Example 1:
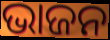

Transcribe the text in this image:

ଭାଜନ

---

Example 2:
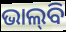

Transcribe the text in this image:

ଭାଲ୍‌ବି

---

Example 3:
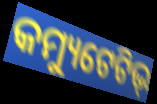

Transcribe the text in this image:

କମ୍ୟୁଟେଟିଭ୍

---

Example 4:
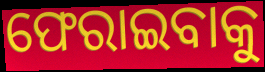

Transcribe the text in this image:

ଫେରାଇବାକୁ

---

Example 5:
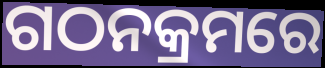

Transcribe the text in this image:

ଗଠନକ୍ରମରେ